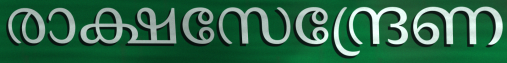
രാക്ഷസേന്ദ്രേണ